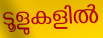
ടൂളുകളിൽ